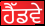
ਹੈੱਡਵੇ